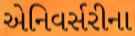
એનિવર્સરીના